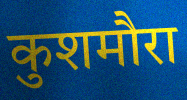
कुशमौरा